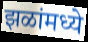
झळांमध्ये